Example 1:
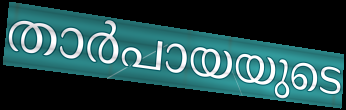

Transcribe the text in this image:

താർപായയുടെ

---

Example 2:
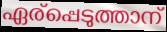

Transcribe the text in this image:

ഏര്പ്പെടുത്താന്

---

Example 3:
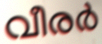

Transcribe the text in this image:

വീരർ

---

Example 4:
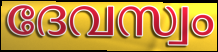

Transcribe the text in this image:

ദേവസ്വം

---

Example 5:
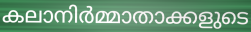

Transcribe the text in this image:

കലാനിർമ്മാതാക്കളുടെ